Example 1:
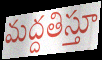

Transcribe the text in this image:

మద్దతిస్తూ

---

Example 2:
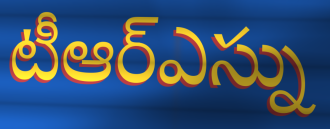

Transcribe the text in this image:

టీఆర్ఎస్ను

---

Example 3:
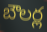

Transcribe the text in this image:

బౌలర్ల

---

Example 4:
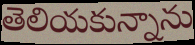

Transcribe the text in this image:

తెలియకున్నాను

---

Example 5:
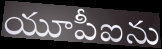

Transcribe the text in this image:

యూపీఐను